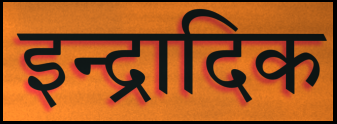
इन्द्रादिक